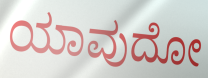
ಯಾವುದೋ